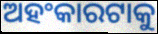
ଅହଂକାରଟାକୁ